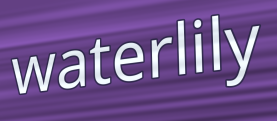
waterlily